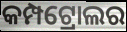
କମ୍ପଟ୍ରୋଲର